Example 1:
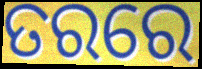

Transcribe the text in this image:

ତରରେ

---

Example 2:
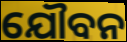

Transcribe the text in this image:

ଯୌବନ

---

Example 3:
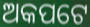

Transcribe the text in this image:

ଅକପଟେ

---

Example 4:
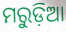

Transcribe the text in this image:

ମରୁଡ଼ିଆ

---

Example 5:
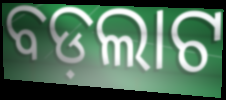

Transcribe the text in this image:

ବଡ଼ଲାଟ